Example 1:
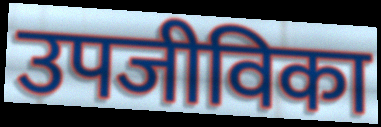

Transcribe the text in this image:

उपजीविका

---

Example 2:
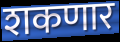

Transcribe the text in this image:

शकणार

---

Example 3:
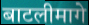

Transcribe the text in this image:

बाटलीमागे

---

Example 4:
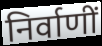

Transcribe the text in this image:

निर्वाणीं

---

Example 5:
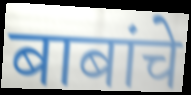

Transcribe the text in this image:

बाबांचे